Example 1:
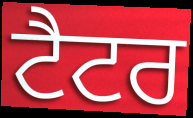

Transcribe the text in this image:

ਟੈਟਰ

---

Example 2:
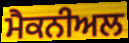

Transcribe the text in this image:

ਮੈਕਨੀਅਲ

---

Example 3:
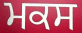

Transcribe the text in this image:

ਮਕਸ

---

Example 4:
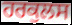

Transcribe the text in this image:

ਹਰਕੁਲਸ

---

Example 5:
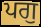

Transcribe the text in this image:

ਪਗੁ